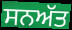
ਸਨਅੱਤ